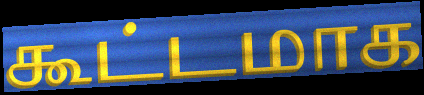
கூட்டமாக